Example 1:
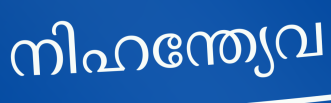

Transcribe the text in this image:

നിഹന്ത്യേവ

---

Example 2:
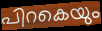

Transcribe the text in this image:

പിറകെയും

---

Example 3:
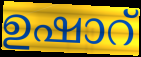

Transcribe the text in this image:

ഉഷാറ്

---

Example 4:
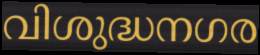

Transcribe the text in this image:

വിശുദ്ധനഗര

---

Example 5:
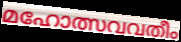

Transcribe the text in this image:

മഹോത്സവവതീം